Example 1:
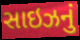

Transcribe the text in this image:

સાઇઝનું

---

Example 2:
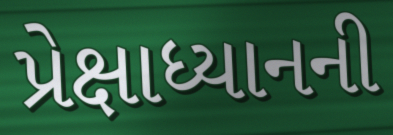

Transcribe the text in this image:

પ્રેક્ષાધ્યાનની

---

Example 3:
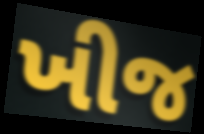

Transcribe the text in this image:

ખીજ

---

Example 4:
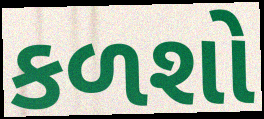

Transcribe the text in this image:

કળશો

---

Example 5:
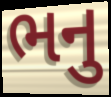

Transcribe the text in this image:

ભનુ